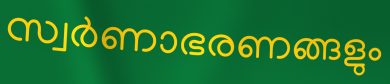
സ്വർണാഭരണങ്ങളും